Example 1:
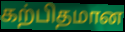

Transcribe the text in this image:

கற்பிதமான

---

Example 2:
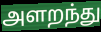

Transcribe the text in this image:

அளறந்து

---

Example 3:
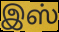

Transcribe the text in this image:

இஸ்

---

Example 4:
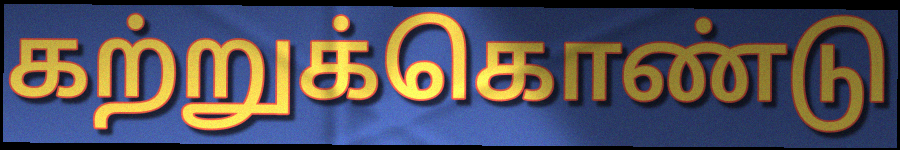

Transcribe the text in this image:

கற்றுக்கொண்டு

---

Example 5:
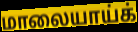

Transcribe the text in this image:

மாலையாய்க்